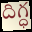
దిగ్ధ